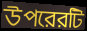
উপরেরটি